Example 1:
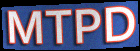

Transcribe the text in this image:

MTPD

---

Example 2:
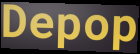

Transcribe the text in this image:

Depop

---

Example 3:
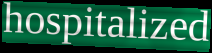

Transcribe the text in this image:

hospitalized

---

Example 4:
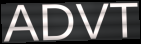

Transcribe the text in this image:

ADVT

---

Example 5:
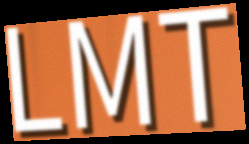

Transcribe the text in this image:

LMT